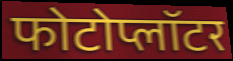
फोटोप्लॉटर